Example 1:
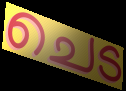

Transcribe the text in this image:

ചെട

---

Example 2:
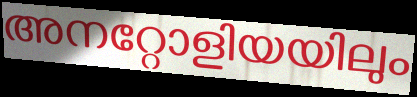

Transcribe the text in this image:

അനറ്റോളിയയിലും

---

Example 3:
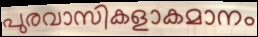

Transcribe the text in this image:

പുരവാസികളാകമാനം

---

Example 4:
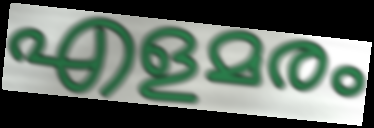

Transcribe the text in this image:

എളമരം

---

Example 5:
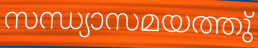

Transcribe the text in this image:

സന്ധ്യാസമയത്തു്